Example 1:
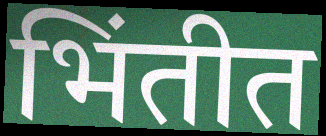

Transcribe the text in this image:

भिंतीत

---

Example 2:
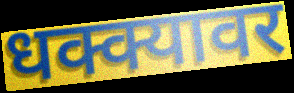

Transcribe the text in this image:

धक्क्यावर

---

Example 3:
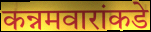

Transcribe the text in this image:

कन्नमवारांकडे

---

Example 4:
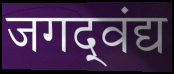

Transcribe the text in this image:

जगद्‌वंद्य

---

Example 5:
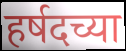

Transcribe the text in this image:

हर्षदच्या